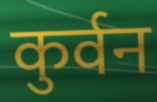
कुर्वन